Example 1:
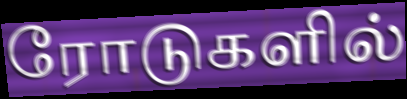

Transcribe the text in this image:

ரோடுகளில்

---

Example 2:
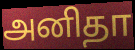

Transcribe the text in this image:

அனிதா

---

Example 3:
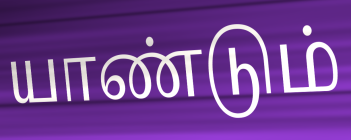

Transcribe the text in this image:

யாண்டும்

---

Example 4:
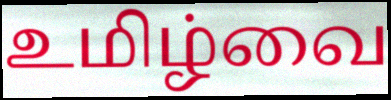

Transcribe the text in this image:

உமிழ்வை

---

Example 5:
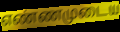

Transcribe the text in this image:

எண்ணமுடைய